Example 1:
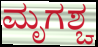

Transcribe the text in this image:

ಮೃಗಶ್ಚ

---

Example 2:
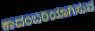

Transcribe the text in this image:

ಕಾದಂಬರಿಯಾಗಿಸುವ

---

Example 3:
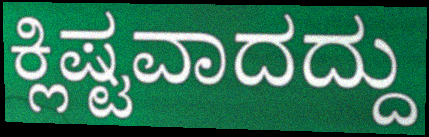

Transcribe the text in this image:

ಕ್ಲಿಷ್ಟವಾದದ್ದು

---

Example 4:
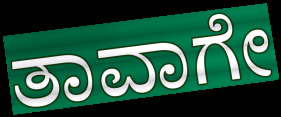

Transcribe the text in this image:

ತಾವಾಗೇ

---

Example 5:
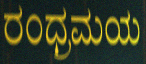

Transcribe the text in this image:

ರಂಧ್ರಮಯ